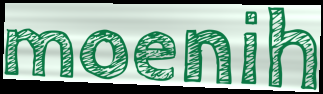
moenih